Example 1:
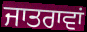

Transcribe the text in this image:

ਜਾਤਰਾਵਾਂ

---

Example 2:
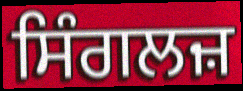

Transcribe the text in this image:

ਸਿੰਗਲਜ਼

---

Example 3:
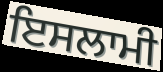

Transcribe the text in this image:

ਇਸਲਾਮੀ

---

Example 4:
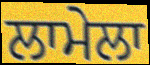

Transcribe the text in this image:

ਲਾਮੇਲਾ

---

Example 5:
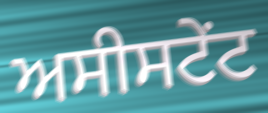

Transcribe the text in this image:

ਅਸੀਸਟੇਂਟ